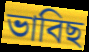
ভাবিছ